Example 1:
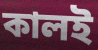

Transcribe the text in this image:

কালই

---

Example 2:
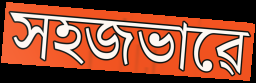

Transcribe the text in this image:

সহজভাৱে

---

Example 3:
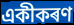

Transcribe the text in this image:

একীকৰণ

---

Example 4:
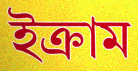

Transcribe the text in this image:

ইক্ৰাম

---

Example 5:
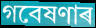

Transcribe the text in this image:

গবেষণাৰ